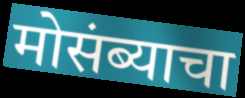
मोसंब्याचा